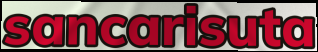
sancarisuta